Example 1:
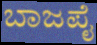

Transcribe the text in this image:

ಬಾಜಪೈ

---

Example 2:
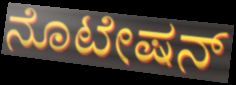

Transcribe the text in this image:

ನೊಟೇಷನ್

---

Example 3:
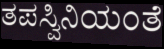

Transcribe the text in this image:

ತಪಸ್ವಿನಿಯಂತೆ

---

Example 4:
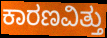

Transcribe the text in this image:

ಕಾರಣವಿತ್ತು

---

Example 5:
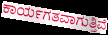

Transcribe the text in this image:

ಕಾರ್ಯಗತವಾಗುತ್ತಿವೆ